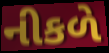
નીકળે